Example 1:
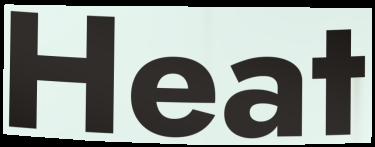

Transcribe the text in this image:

Heat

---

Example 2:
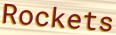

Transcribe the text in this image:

Rockets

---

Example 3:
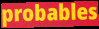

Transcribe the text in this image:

probables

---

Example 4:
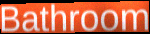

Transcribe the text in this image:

Bathroom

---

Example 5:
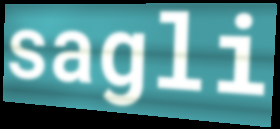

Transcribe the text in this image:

sagli